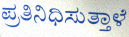
ಪ್ರತಿನಿಧಿಸುತ್ತಾಳೆ